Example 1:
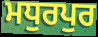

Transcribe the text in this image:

ਮਧੁਰਪੁਰ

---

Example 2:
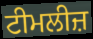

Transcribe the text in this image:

ਟੀਮਲੀਜ਼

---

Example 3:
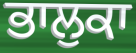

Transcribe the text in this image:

ਭਾਲੁਕਾ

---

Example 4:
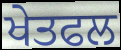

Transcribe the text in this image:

ਖੇਤਫਲ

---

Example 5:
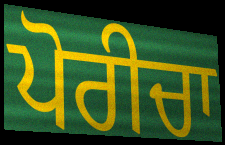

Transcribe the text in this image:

ਪੋਰੀਚਾ